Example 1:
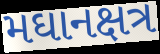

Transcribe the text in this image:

મઘાનક્ષત્ર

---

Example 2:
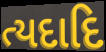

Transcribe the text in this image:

ત્યદાદિ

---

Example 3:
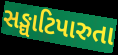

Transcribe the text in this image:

સઙ્ઘાટિપારુતા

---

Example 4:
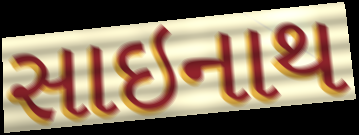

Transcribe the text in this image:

સાઇનાથ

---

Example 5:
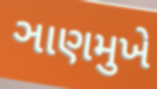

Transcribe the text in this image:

ઞાણમુખે